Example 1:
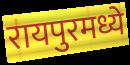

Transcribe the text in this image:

रायपुरमध्ये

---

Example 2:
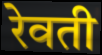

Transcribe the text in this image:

रेवती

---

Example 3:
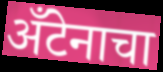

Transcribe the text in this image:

अँटेनाचा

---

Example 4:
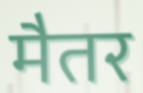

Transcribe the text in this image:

मैतर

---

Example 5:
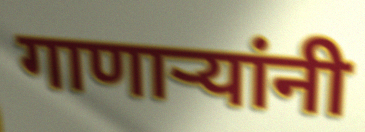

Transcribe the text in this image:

गाणाऱ्यांनी